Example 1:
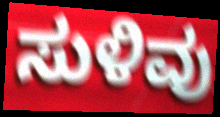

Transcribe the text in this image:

ಸುಳಿವು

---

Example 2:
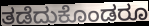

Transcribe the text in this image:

ತಡೆದುಕೊಂಡರೂ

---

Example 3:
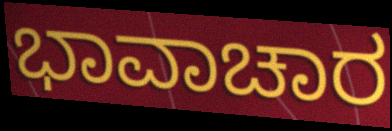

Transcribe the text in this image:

ಭಾವಾಚಾರ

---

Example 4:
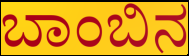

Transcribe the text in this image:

ಬಾಂಬಿನ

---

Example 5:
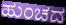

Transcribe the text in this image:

ಹುಂಚದ